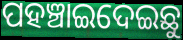
ପହଞ୍ଚାଇଦେଇଛୁ